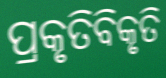
ପ୍ରକୃତିବିକୃତି